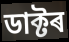
ডাক্টৰ